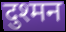
दुश्मन